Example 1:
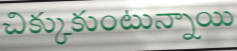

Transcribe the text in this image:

చిక్కుకుంటున్నాయి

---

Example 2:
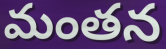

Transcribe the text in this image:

మంతన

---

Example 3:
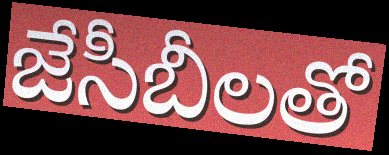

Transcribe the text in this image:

జేసీబీలతో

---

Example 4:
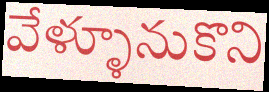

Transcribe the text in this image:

వేళ్ళూనుకొని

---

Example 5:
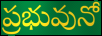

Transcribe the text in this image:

ప్రభువునో